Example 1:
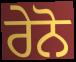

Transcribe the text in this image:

ਰੇਨੋ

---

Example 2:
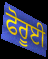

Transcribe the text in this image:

ਫੋਰੂਈ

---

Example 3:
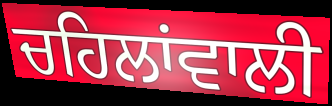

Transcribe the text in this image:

ਚਹਿਲਾਂਵਾਲੀ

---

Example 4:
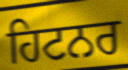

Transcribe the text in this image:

ਹਿਟਨਰ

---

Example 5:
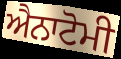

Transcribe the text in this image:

ਐਨਾਟੋਮੀ